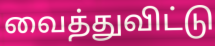
வைத்துவிட்டு